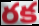
రక